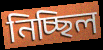
নিচ্ছিল